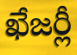
ఖేజర్లీ